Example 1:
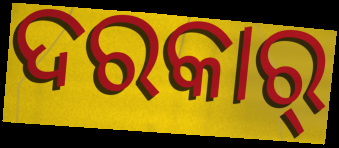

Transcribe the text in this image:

ଦରକାର୍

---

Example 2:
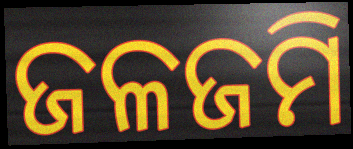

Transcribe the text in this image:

ଜଳଜମି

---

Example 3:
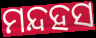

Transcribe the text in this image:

ମନ୍ଦହସ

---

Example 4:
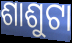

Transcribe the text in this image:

ଶାଶୁଟା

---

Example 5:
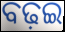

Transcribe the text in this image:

ବଢ଼ଇ